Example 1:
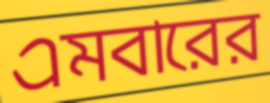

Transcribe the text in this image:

এমবারের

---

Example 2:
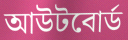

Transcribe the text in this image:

আউটবোর্ড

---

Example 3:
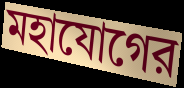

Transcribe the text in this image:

মহাযোগের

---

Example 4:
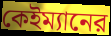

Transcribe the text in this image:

কেইম্যানের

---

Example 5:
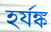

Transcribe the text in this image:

হর্যঙ্ক